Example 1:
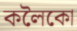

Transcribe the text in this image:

কলৈকো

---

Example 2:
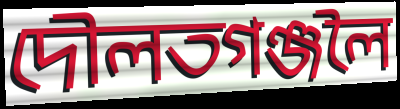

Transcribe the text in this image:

দৌলতগঞ্জলৈ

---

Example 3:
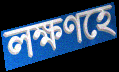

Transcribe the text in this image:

লক্ষণহে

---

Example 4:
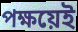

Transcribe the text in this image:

পক্ষয়েই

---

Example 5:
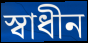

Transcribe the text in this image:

স্ৱাধীন